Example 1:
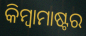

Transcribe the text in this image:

କିମ୍ୱାମାଷ୍ଟର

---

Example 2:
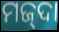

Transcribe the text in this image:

ମଜ୍‌ଦା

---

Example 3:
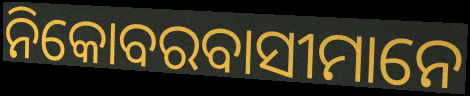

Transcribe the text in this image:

ନିକୋବରବାସୀମାନେ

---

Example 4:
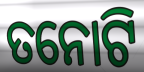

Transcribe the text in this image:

ତନୋଟି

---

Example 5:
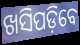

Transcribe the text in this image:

ଖସିପଡ଼ିବେ